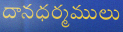
దానధర్మములు